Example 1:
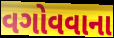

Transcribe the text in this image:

વગોવવાના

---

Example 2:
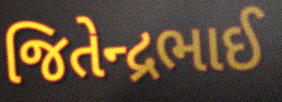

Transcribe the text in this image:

જિતેન્દ્રભાઈ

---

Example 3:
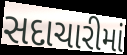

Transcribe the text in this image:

સદાચારીમાં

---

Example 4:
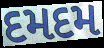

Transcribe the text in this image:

દમદમ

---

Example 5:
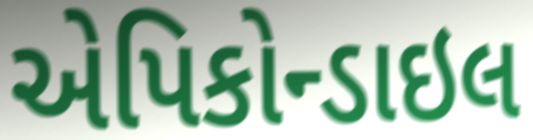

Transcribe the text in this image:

એપિકોન્ડાઇલ